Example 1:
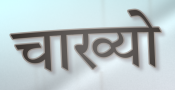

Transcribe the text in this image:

चाख्यो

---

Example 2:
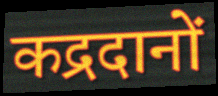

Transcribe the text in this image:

कद्रदानों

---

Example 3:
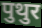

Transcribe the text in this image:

पुथुर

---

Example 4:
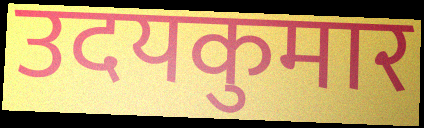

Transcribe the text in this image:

उदयकुमार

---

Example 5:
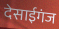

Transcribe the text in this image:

देसाईगंज